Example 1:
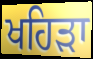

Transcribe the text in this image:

ਖਹਿਡ਼ਾ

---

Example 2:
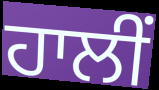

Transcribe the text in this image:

ਹਾਲੀਂ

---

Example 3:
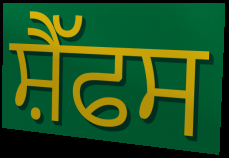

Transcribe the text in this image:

ਸ਼ੈੱਫਸ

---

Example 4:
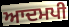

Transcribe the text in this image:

ਆਦਮਪੀ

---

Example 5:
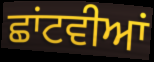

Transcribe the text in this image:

ਛਾਂਟਵੀਆਂ